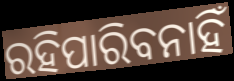
ରହିପାରିବନାହିଁ